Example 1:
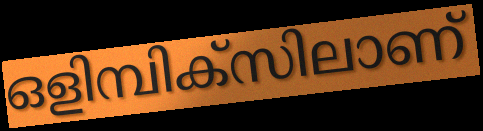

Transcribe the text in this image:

ഒളിമ്പിക്സിലാണ്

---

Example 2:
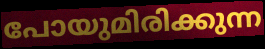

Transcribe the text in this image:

പോയുമിരിക്കുന്ന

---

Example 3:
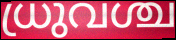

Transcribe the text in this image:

ധ്രുവശ്ച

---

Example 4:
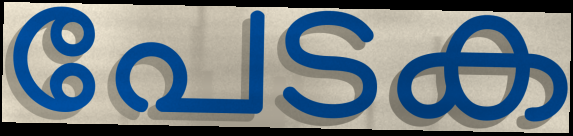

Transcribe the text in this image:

പേടക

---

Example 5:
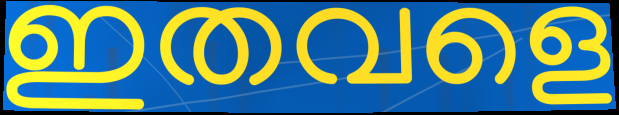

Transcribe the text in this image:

ഇതവളെ